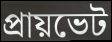
প্রায়ভেট